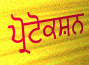
ਪ੍ਰੋਟੋਕਸ਼ਨ